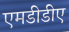
एमडीडीए